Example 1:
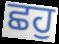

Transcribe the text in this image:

ਛਹੁ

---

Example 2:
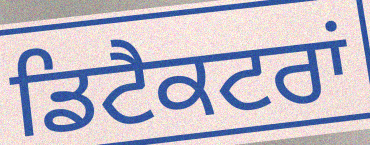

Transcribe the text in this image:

ਡਿਟੈਕਟਰਾਂ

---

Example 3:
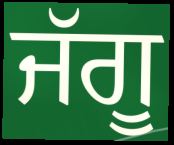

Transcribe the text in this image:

ਜੱਗੂ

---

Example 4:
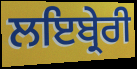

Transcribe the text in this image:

ਲਇਬ੍ਰੇਰੀ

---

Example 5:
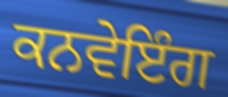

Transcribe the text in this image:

ਕਨਵੇਇੰਗ